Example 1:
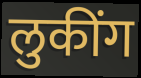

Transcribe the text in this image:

लुकींग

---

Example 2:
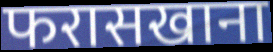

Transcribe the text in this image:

फरासखाना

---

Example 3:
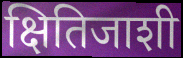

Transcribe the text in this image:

क्षितिजाशी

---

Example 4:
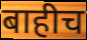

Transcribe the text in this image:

बाहीच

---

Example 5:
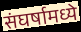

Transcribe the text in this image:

संघर्षामध्ये